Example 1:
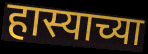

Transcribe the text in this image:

हास्याच्या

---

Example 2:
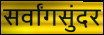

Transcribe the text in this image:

सर्वांगसुंदर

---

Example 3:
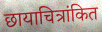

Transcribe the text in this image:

छायाचित्रांकित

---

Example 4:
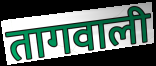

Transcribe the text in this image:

तागवाली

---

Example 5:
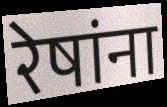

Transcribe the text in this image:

रेषांना